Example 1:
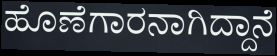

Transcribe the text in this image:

ಹೊಣೆಗಾರನಾಗಿದ್ದಾನೆ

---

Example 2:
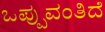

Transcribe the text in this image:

ಒಪ್ಪುವಂತಿದೆ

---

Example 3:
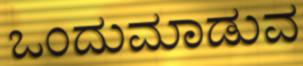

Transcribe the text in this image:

ಒಂದುಮಾಡುವ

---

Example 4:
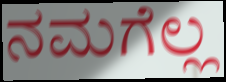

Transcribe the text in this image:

ನಮಗೆಲ್ಲ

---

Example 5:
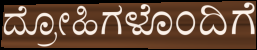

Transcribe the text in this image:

ದ್ರೋಹಿಗಳೊಂದಿಗೆ